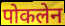
पोकलेन